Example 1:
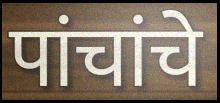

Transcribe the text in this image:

पांचांचे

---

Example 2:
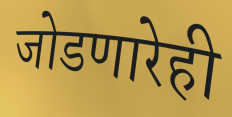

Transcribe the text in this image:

जोडणारेही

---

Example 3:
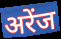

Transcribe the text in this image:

अरेंज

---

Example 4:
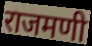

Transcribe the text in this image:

राजमणी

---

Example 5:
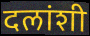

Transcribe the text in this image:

दलांशी